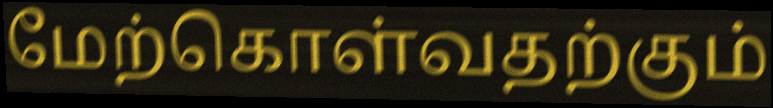
மேற்கொள்வதற்கும்